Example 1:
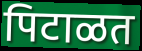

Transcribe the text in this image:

पिटाळत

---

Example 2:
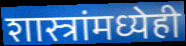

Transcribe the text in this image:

शास्त्रांमध्येही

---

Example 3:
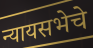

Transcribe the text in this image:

न्यायसभेचे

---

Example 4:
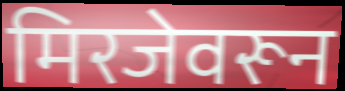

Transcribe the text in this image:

मिरजेवरून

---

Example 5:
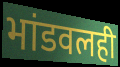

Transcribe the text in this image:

भांडवलही